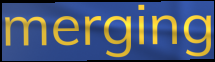
merging